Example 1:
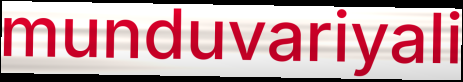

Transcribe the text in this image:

munduvariyali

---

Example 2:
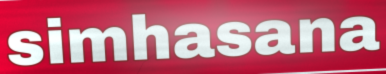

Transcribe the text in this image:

simhasana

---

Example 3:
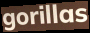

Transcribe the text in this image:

gorillas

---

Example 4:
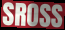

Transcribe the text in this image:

SROSS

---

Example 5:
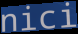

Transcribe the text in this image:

nici